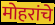
मोहरांचे